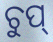
ଚୁପ୍